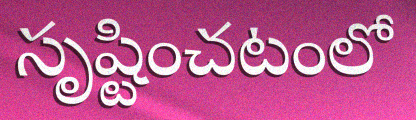
సృష్టించటంలో